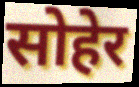
सोहेर